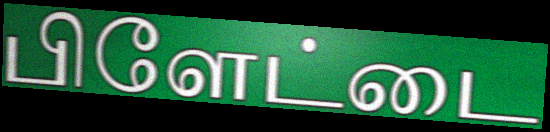
பிளேட்டை